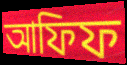
আফিফ